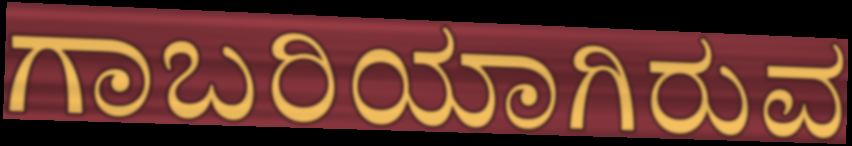
ಗಾಬರಿಯಾಗಿರುವ